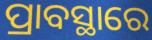
ପ୍ରାବସ୍ଥାରେ